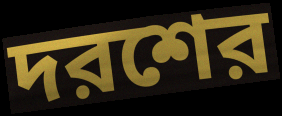
দরশের